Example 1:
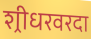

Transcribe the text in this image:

श्रीधरवरदा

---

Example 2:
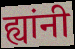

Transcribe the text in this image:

ह्यांनी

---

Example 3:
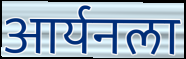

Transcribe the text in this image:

आर्यनला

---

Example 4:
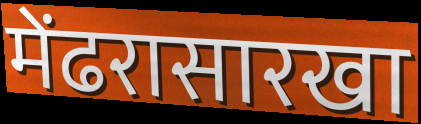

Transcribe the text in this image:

मेंढरासारखा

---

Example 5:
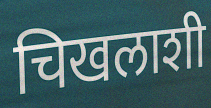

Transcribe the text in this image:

चिखलाशी